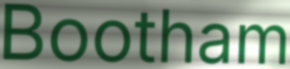
Bootham